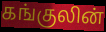
கங்குலின்